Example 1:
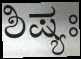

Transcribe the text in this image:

ಶಿಷ್ಯಃ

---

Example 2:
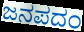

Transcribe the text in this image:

ಜನಪದಂ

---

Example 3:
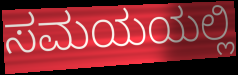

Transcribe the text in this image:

ಸಮಯಯಲ್ಲಿ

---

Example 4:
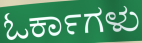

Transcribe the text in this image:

ಓರ್ಕಾಗಳು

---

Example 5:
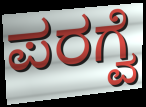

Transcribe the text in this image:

ಪರಗ್ವೆ